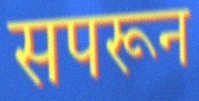
सपरून